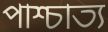
পাশ্চাত্য